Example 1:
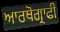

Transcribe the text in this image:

ਆਰਥੋਗ੍ਰਾਫੀ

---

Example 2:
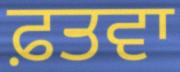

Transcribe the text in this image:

ਫ਼ਤਵਾ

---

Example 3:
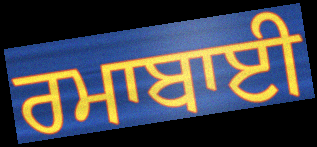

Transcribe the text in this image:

ਰਮਾਬਾਈ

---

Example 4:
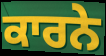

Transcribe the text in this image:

ਕਾਰਨੇ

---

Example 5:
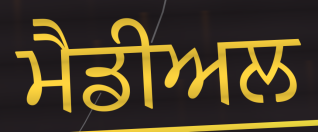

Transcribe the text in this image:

ਮੈਡੀਅਲ